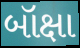
બૉક્ષા